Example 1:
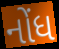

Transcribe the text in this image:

નોંધ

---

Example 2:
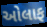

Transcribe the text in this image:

ઓલાફ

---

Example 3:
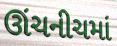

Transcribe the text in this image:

ઊંચનીચમાં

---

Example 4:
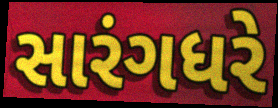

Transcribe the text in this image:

સારંગધરે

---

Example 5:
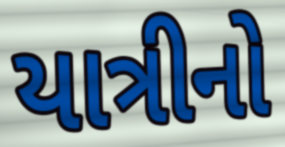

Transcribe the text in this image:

યાત્રીનો